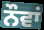
ਨੌਵਾਂ